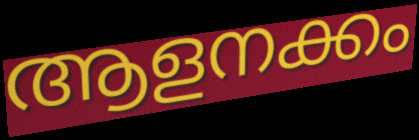
ആളനക്കം